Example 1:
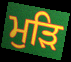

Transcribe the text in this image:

ਮੁੜਿ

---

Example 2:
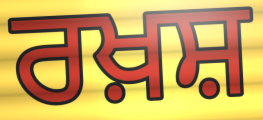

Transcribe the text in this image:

ਰਖ਼ਸ਼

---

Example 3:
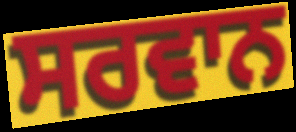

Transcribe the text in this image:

ਸਰਵਾਨ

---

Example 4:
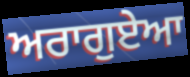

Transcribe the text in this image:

ਅਰਾਗੁਏਆ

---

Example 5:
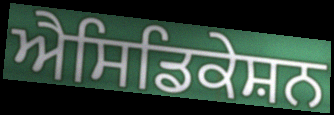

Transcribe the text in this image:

ਐਸਿਡਿਕੇਸ਼ਨ